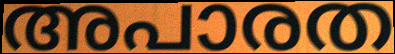
അപാരത